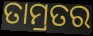
ତାମ୍ରତର